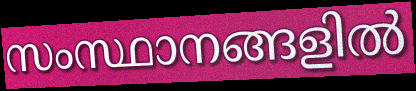
സംസ്ഥാനങ്ങളിൽ